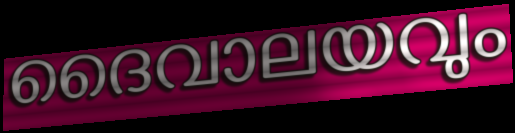
ദൈവാലയവും